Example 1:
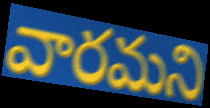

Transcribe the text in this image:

వారమని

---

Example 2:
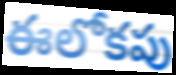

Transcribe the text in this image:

ఈలోకపు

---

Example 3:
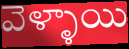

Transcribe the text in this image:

వెళ్ళాయి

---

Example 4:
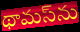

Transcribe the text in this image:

థామస్‌ను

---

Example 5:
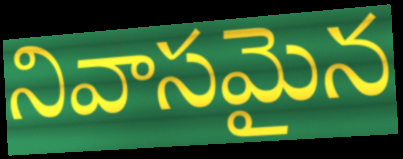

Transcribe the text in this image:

నివాసమైన